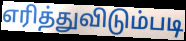
எரித்துவிடும்படி